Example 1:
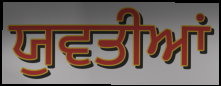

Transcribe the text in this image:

ਯੁਵਤੀਆਂ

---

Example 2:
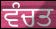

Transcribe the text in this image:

ਵੰਚਤ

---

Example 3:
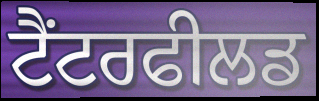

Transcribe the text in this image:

ਟੈਂਟਰਫੀਲਡ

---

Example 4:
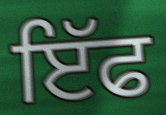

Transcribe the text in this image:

ਇੱਫ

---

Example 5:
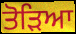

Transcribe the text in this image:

ਤੋਡ਼ਿਆ